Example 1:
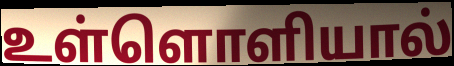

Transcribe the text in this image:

உள்ளொளியால்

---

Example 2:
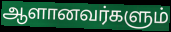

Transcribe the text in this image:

ஆளானவர்களும்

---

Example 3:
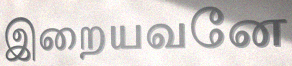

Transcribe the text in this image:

இறையவனே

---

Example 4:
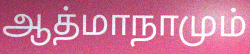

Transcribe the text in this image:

ஆத்மாநாமும்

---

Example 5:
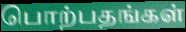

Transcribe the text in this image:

பொற்பதங்கள்